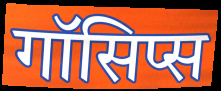
गॉसिप्स